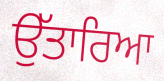
ਉੱਤਾਰਿਆ